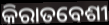
କିରାତବେଶୀ